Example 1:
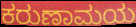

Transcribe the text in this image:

ಕರುಣಾಮಯ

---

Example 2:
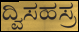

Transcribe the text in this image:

ದ್ವಿಸಹಸ್ರ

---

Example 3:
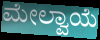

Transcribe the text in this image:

ಮೇಲ್ವಾಯೆ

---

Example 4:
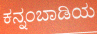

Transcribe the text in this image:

ಕನ್ನಂಬಾಡಿಯ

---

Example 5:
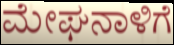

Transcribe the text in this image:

ಮೇಘನಾಳಿಗೆ